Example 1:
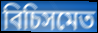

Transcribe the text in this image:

বিচিসমেত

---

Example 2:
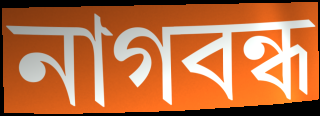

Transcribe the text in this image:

নাগবন্ধ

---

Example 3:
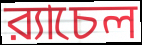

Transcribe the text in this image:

র‍্যাচেল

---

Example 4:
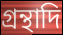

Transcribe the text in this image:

গ্রন্থাদি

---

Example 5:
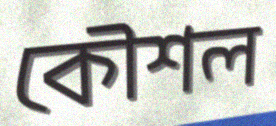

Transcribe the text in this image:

কৌশল